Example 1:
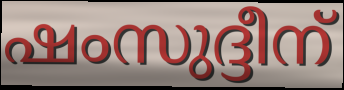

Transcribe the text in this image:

ഷംസുദ്ദീന്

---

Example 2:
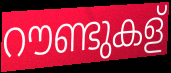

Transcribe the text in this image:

റൗണ്ടുകള്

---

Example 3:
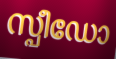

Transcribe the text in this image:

സ്പീഡോ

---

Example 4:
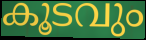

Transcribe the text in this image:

കൂടവും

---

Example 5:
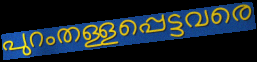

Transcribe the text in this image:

പുറംതള്ളപ്പെട്ടവരെ